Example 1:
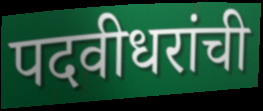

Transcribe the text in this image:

पदवीधरांची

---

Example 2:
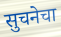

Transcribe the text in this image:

सुचनेचा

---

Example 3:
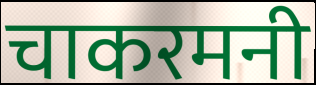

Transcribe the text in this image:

चाकरमनी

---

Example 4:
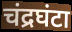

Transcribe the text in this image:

चंद्रघंटा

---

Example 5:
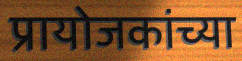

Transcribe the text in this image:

प्रायोजकांच्या